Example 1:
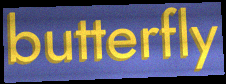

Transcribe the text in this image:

butterfly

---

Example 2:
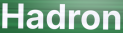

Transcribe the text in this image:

Hadron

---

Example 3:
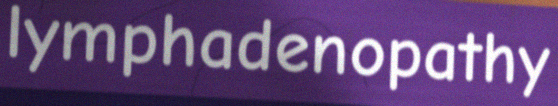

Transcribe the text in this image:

lymphadenopathy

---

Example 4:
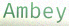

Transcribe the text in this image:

Ambey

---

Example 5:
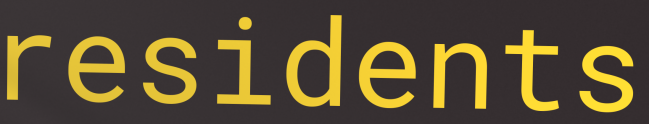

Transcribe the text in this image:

residents